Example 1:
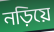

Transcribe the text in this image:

নড়িয়ে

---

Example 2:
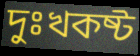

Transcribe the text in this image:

দুঃখকষ্ট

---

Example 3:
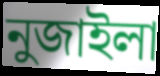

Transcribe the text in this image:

নুজাইলা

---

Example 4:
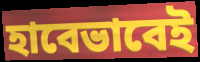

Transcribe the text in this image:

হাবেভাবেই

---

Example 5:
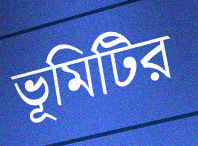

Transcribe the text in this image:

ভূমিটির